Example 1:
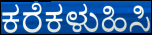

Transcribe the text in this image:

ಕರೆಕಳುಹಿಸಿ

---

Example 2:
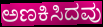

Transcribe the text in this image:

ಅಣಕಿಸಿದವು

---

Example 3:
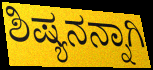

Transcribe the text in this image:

ಶಿಷ್ಯನನ್ನಾಗಿ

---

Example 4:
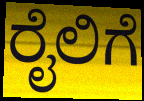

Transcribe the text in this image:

ರೈಲಿಗೆ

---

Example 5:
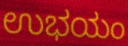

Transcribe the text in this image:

ಉಭಯಂ